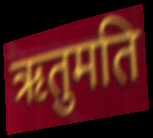
ऋतुमति